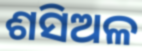
ଶସିଅଳ